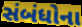
સંબંધોના